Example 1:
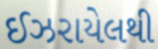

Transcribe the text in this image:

ઈઝરાયેલથી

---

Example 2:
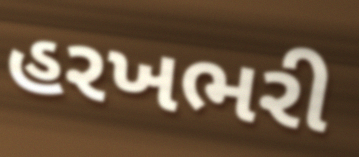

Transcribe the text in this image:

હરખભરી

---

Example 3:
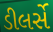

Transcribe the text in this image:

ડીલર્સે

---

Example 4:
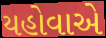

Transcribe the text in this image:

યહોવાએ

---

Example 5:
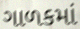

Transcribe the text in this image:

ગાળકમાં